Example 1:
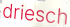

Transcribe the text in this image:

driesch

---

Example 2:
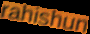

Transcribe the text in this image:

rahishun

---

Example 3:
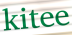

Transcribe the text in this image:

kitee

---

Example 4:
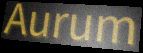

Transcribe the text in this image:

Aurum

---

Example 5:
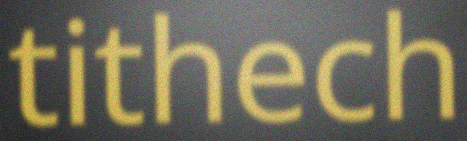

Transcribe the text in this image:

tithech